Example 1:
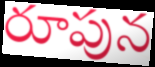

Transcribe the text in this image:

రూపున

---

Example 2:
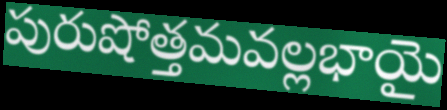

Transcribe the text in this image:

పురుషోత్తమవల్లభాయై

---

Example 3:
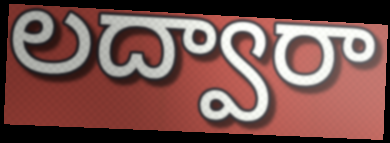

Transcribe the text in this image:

లద్వారా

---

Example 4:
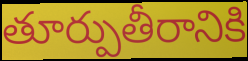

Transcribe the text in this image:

తూర్పుతీరానికి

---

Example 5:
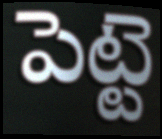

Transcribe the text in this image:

పెట్టె